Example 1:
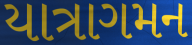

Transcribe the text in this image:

યાત્રાગમન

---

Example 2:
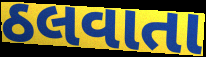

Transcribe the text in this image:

ઠલવાતા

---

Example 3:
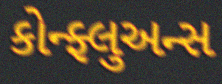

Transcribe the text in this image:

કોન્ફ્લુઅન્સ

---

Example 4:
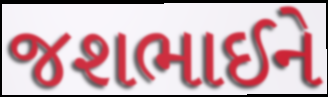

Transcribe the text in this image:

જશભાઈને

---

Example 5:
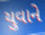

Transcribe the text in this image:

યુવાને